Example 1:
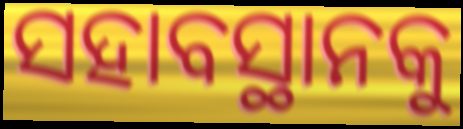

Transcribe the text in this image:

ସହାବସ୍ଥାନକୁ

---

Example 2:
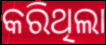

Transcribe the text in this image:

କରିଥିଲା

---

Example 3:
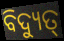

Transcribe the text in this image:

ବିଦ୍ୟୁତ୍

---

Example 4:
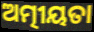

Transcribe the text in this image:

ଅତ୍ମୀୟତା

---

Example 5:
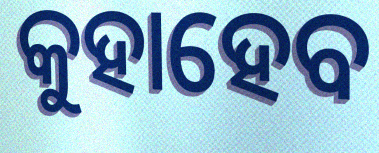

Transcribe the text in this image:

କୁହାହେବ